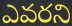
ఎవరని